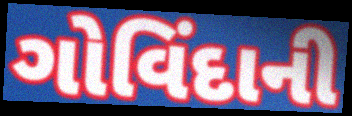
ગોવિંદાની